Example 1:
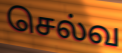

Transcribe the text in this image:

செல்வ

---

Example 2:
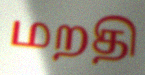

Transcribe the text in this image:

மறதி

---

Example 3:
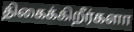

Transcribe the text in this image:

திகைக்கிறீர்களா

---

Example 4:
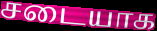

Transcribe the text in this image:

சடையாக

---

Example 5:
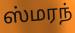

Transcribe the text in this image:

ஸ்மரந்